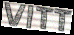
VITT